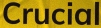
Crucial